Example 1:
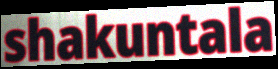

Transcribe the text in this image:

shakuntala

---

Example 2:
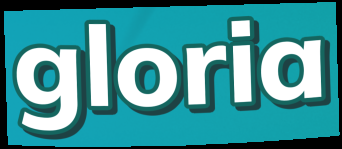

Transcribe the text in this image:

gloria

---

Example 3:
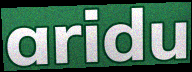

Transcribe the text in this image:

aridu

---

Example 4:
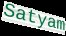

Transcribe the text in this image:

Satyam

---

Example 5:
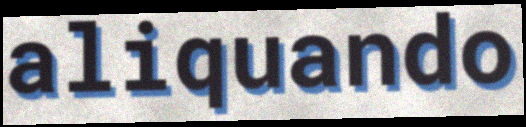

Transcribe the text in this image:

aliquando